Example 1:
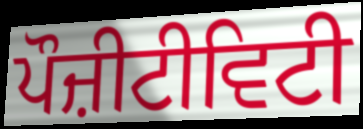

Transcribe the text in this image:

ਪੌਜ਼ੀਟੀਵਿਟੀ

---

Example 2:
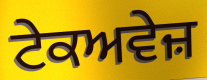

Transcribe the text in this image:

ਟੇਕਅਵੇਜ਼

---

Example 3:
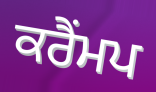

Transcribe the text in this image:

ਕਰੈਂਮਪ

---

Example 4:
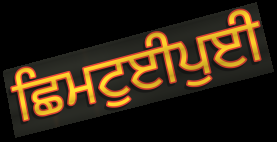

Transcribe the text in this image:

ਛਿਮਟੁਈਪੁਈ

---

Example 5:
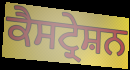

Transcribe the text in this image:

ਕੈਸਟ੍ਰੇਸ਼ਨ